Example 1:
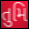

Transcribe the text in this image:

તુમિ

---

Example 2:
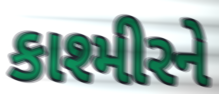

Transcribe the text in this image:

કાશ્મીરને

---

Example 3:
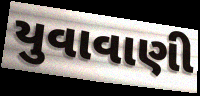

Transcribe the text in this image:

યુવાવાણી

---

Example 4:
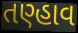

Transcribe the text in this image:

તણ્હાવ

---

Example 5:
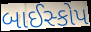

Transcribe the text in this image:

બાઈસ્કોપ